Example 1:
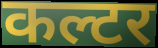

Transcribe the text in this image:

कल्टर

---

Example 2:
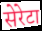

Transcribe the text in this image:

सेरेटा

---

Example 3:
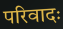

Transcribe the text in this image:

परिवादः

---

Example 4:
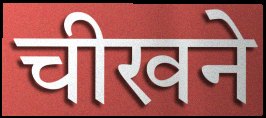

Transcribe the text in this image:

चीखने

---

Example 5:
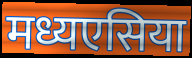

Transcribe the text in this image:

मध्यएसिया